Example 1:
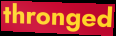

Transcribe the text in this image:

thronged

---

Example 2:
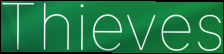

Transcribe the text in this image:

Thieves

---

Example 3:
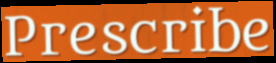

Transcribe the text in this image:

Prescribe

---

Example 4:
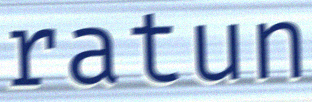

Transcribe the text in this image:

ratun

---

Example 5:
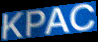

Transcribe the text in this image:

KPAC